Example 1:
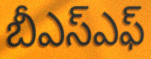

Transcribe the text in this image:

బీఎస్ఎఫ్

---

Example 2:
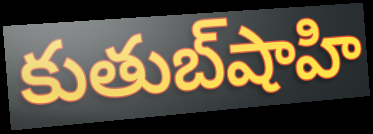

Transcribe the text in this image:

కుతుబ్‌షాహి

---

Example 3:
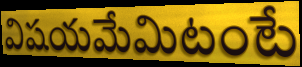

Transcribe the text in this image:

విషయమేమిటంటే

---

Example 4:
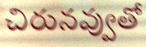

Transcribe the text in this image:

చిరునవ్వుతో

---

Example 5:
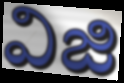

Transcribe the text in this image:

విజి